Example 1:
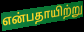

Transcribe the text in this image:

என்பதாயிற்று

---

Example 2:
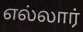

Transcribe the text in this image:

எல்லார்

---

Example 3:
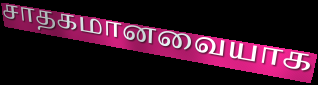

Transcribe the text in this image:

சாதகமானவையாக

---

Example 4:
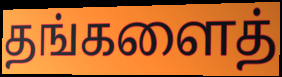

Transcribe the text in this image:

தங்களைத்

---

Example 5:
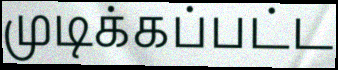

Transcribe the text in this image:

முடிக்கப்பட்ட